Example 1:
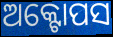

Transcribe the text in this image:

ଅକ୍ଟୋପସ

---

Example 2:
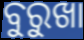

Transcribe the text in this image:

ବୁରୁଖା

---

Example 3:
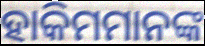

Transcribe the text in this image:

ହାକିମମାନଙ୍କ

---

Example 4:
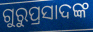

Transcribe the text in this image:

ଗୁରୁପ୍ରସାଦଙ୍କ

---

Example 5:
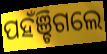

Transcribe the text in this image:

ପହଁଞ୍ଚିଗଲେ